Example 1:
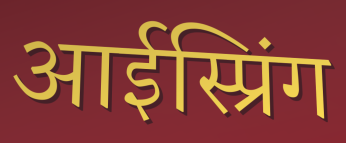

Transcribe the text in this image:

आईस्प्रिंग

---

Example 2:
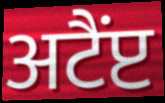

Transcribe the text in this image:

अटैंप्ट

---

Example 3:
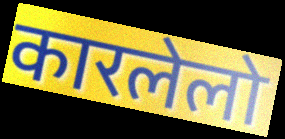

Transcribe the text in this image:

कारलेलो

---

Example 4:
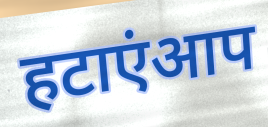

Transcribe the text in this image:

हटाएंआप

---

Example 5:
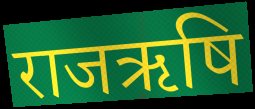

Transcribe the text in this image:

राजऋषि